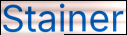
Stainer